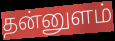
தன்னுளம்